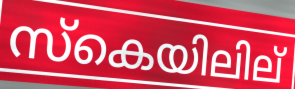
സ്കെയിലില്